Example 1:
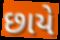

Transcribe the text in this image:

છાયે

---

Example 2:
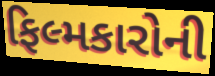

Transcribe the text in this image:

ફિલ્મકારોની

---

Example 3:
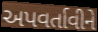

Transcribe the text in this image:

અપવર્તાવીને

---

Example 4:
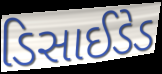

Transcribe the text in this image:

ડિસાઈડેડ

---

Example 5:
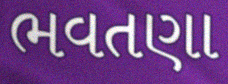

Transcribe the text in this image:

ભવતણા